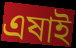
এষাই